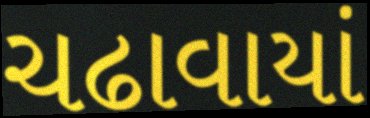
ચઢાવાયાં